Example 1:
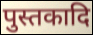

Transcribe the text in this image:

पुस्तकादि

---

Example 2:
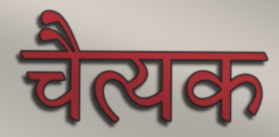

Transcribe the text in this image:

चैत्यक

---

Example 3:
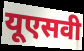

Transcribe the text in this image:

यूएसवी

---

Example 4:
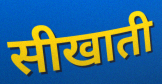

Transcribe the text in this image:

सीखाती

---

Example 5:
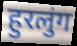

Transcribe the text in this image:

हुरलुंग